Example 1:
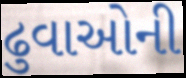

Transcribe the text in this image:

ઢુવાઓની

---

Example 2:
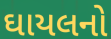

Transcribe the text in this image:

ઘાયલનો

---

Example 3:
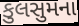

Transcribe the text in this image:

કુલસુમના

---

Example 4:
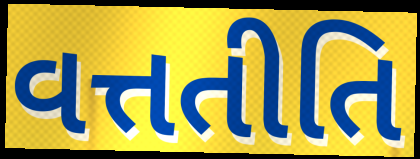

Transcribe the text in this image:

વત્તતીતિ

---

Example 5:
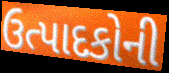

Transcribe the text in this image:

ઉત્પાદકોની